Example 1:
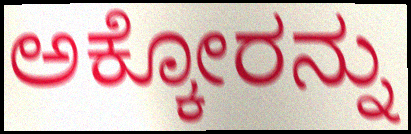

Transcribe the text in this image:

ಅಕ್ಕೋರನ್ನು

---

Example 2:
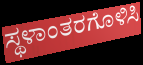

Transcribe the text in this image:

ಸ್ಥಳಾಂತರಗೊಳಿಸಿ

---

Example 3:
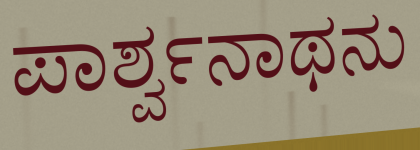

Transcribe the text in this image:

ಪಾರ್ಶ್ವನಾಥನು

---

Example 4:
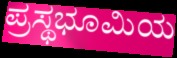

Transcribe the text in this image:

ಪ್ರಸ್ಥಭೂಮಿಯ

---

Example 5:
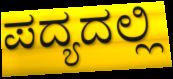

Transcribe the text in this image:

ಪದ್ಯದಲ್ಲಿ